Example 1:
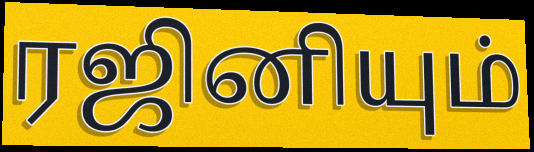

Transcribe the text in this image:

ரஜினியும்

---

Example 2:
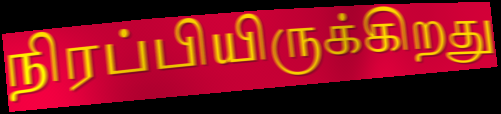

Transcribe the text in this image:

நிரப்பியிருக்கிறது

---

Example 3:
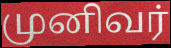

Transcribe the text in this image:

முனிவர்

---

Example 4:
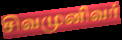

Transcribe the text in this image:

சிவமுனிவர்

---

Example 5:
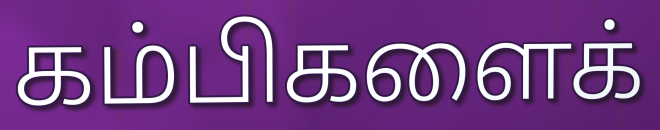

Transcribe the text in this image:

கம்பிகளைக்